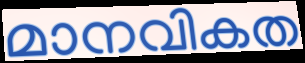
മാനവികത